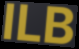
ILB